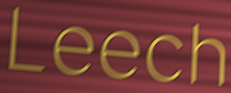
Leech